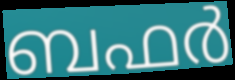
ബഫർ